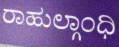
ರಾಹುಲ್ಗಾಂಧಿ